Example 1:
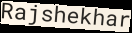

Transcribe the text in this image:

Rajshekhar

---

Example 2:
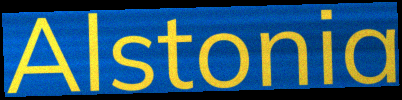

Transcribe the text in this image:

Alstonia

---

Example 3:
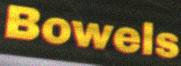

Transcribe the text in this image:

Bowels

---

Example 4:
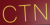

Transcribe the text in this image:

CTN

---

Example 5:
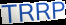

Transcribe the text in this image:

TRRP